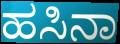
ಹಸಿನಾ